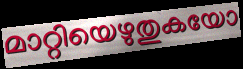
മാറ്റിയെഴുതുകയോ